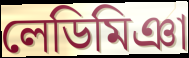
লেডিমিঞা